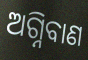
ଅଗ୍ନିବାଣ